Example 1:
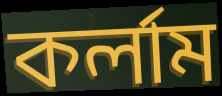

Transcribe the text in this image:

কর্লাম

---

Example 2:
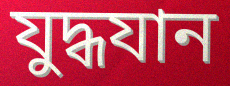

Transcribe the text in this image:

যুদ্ধযান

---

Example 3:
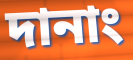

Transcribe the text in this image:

দানাং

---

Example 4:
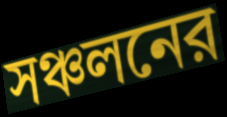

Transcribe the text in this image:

সঞ্চলনের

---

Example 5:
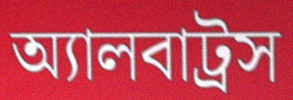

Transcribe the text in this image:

অ্যালবাট্রস